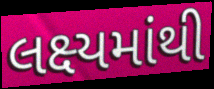
લક્ષ્યમાંથી